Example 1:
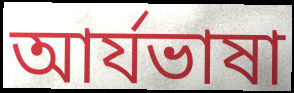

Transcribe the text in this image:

আর্যভাষা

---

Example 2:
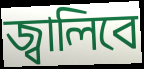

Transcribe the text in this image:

জ্বালিবে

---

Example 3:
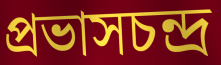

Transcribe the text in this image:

প্রভাসচন্দ্র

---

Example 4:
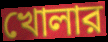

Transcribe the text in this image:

খোলার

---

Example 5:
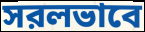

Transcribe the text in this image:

সরলভাবে